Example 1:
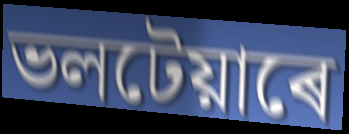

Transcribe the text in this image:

ভলটেয়াৰে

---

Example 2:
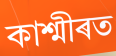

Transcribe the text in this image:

কাশ্মীৰত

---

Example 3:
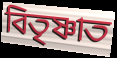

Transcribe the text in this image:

বিতৃষ্ণাত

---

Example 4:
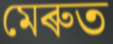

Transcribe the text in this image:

মেৰুত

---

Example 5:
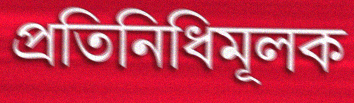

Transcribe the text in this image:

প্ৰতিনিধিমূলক